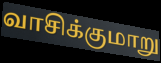
வாசிக்குமாறு